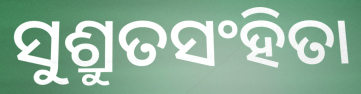
ସୁଶ୍ରୁତସଂହିତା